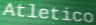
Atletico